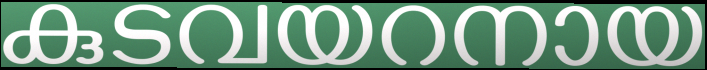
കുടവയറനായ